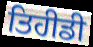
ਤਿਹੀਡੀ